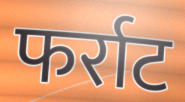
फर्राट